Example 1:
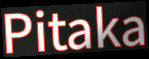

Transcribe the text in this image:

Pitaka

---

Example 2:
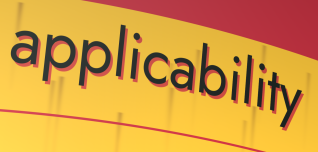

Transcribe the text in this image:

applicability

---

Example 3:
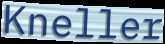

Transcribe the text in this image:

Kneller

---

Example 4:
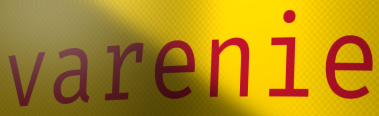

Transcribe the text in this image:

varenie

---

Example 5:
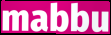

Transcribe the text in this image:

mabbu